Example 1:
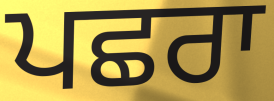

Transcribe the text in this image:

ਪਛਰਾ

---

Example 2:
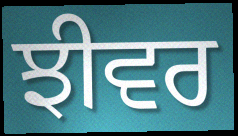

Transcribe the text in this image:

ਝੀਵਰ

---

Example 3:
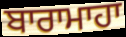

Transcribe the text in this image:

ਬਾਰਾਮਾਹਾ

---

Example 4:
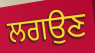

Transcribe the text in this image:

ਲਗਉਣ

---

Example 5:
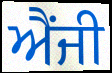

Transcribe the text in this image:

ਐਂਜੀ